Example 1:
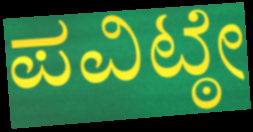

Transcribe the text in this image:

ಪವಿಟ್ಠೇ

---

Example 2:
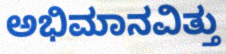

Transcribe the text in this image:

ಅಭಿಮಾನವಿತ್ತು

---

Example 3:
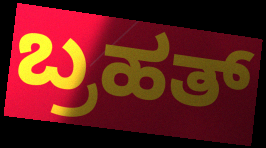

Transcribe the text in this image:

ಬ್ರಹತ್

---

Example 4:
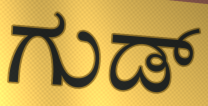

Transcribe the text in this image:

ಗುಡ್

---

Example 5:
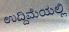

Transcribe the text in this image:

ಉದ್ದಿಮೆಯಲ್ಲಿ